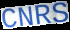
CNRS